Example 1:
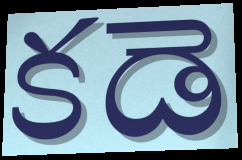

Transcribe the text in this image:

కడె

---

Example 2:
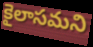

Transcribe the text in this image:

కైలాసమని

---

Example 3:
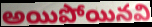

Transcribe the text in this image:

అయిపోయినవి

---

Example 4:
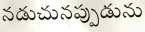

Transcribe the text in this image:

నడుచునప్పుడును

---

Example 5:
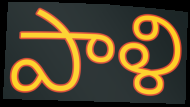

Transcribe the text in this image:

పాళి